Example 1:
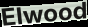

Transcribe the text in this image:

Elwood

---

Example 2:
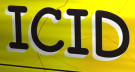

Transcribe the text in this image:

ICID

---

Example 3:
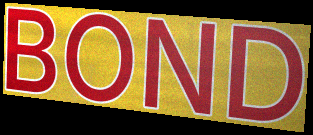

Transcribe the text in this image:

BOND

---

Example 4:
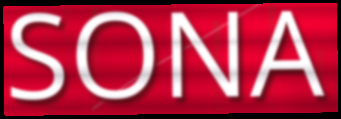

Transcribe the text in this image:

SONA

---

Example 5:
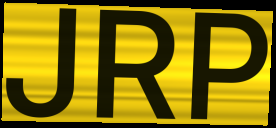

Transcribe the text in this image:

JRP